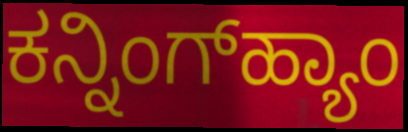
ಕನ್ನಿಂಗ್‌ಹ್ಯಾಂ